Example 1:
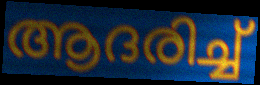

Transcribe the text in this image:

ആദരിച്ച്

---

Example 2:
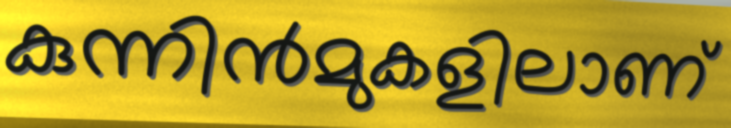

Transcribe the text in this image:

കുന്നിൻമുകളിലാണ്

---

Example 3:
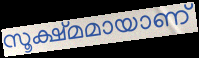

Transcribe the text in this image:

സൂക്ഷ്മമായാണ്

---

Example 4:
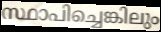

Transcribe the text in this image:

സ്ഥാപിച്ചെങ്കിലും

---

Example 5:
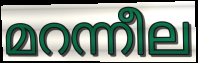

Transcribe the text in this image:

മറന്നീല